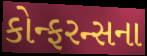
કોન્ફરન્સના